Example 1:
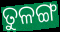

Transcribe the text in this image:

ତୁଳଙ୍ଗ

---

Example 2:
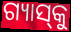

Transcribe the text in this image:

ଗ୍ୟାସ୍‌କୁ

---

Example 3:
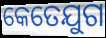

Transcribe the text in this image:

କେତେଯୁଗ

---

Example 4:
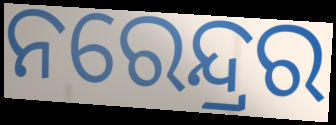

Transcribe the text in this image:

ନରେନ୍ଦ୍ରର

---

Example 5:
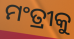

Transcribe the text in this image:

ମଂତ୍ରୀକୁ